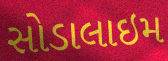
સોડાલાઇમ